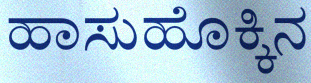
ಹಾಸುಹೊಕ್ಕಿನ